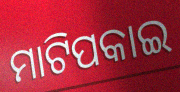
ମାଟିପକାଇ